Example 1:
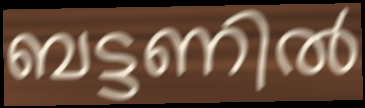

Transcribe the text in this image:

ബട്ടണിൽ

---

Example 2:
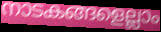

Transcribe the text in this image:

നാടകങ്ങളെല്ലാം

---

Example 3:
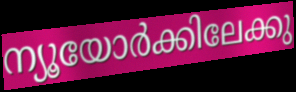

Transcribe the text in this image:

ന്യൂയോർക്കിലേക്കു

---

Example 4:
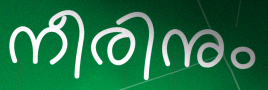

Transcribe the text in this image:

നീരിനും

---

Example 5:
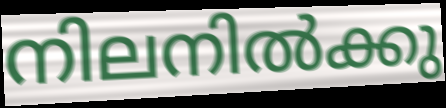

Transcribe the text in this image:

നിലനിൽക്കു